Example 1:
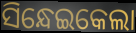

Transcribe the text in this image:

ସିନ୍ଧେଇକେଲା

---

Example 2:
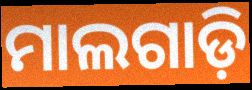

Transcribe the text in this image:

ମାଲଗାଡ଼ି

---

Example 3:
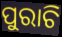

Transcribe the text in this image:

ପୁରାଚି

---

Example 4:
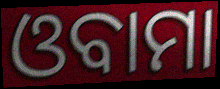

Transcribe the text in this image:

ଓବାମା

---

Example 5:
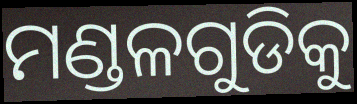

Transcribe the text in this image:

ମଣ୍ଡଳଗୁଡିକୁ